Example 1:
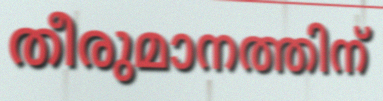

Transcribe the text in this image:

തീരുമാനത്തിന്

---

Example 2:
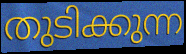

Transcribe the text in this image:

തുടിക്കുന്ന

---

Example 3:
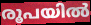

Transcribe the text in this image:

രൂപയിൽ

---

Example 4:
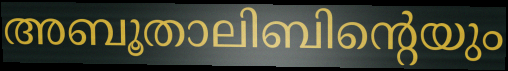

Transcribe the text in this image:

അബൂതാലിബിന്റെയും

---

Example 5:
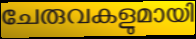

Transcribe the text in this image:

ചേരുവകളുമായി